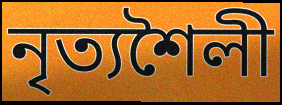
নৃত্যশৈলী